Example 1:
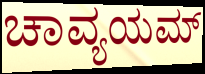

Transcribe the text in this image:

ಚಾವ್ಯಯಮ್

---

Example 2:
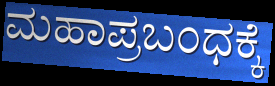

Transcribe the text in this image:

ಮಹಾಪ್ರಬಂಧಕ್ಕೆ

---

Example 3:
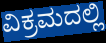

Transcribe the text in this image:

ವಿಕ್ರಮದಲ್ಲಿ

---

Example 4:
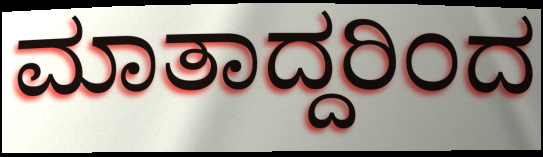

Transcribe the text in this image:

ಮಾತಾದ್ದರಿಂದ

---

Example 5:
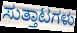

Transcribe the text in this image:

ಸುತ್ತಾಟಗಳು